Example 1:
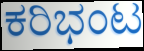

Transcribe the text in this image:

ಕರಿಭಂಟ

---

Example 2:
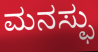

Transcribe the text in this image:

ಮನಸ್ಫು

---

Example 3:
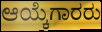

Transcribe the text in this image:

ಆಯ್ಕೆಗಾರರು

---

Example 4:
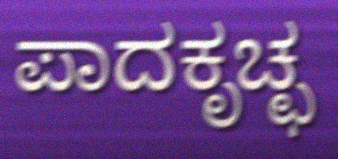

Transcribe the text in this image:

ಪಾದಕೃಚ್ಛ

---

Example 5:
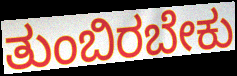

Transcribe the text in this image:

ತುಂಬಿರಬೇಕು